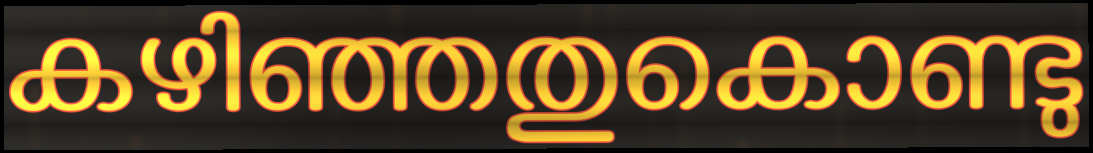
കഴിഞ്ഞതുകൊണ്ടു